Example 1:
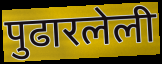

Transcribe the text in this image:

पुढारलेली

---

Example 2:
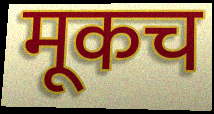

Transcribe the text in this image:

मूकच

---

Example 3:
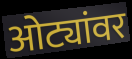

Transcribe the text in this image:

ओट्यांवर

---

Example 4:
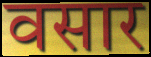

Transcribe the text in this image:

वसार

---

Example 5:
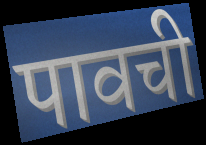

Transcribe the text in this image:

पावची